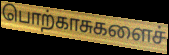
பொற்காசுகளைச்